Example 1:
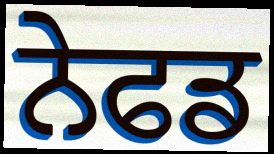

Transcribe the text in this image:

ਨੇਫਡ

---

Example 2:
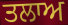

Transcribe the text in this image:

ਤਲਾਅ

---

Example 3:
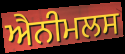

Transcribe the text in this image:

ਐਨੀਮਲਸ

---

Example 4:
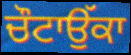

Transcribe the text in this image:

ਚੌਟਾਉੱਕਾ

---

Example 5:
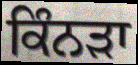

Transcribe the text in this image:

ਕਿੰਨੜਾ